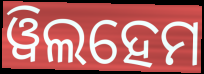
ୱିଲହେମ